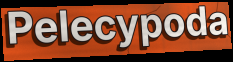
Pelecypoda